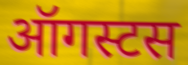
ऑगस्टस